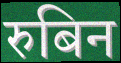
रुबिन